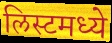
लिस्टमध्ये